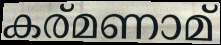
കര്മണാമ്